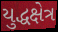
યુદ્ધક્ષેત્ર